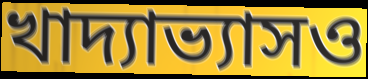
খাদ্যাভ্যাসও